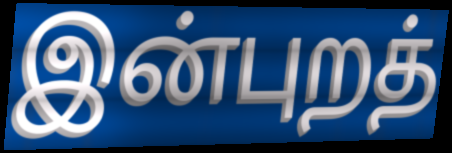
இன்புறத்